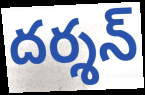
దర్శన్